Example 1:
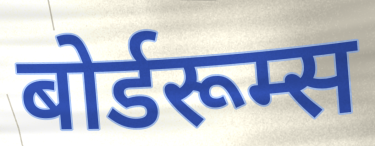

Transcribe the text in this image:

बोर्डरूम्स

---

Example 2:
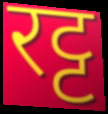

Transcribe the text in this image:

रट्ट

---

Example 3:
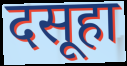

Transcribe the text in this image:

दसूहा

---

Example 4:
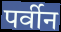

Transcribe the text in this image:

पर्वीन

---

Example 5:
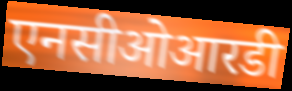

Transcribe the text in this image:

एनसीओआरडी